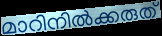
മാറിനിൽക്കരുത്